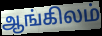
ஆங்கிலம்